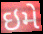
ઇમે